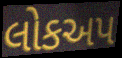
લોકઅપ